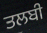
ਤਲਬੀ